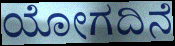
ಯೋಗದಿನೆ